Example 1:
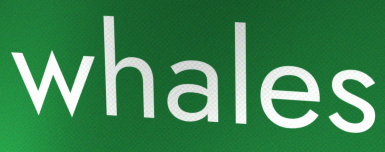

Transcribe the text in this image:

whales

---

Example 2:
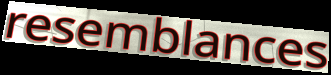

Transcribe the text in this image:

resemblances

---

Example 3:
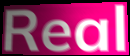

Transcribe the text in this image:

Real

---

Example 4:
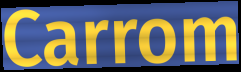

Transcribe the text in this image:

Carrom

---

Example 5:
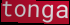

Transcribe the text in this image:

tonga